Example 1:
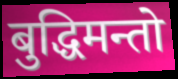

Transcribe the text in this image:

बुद्धिमन्तो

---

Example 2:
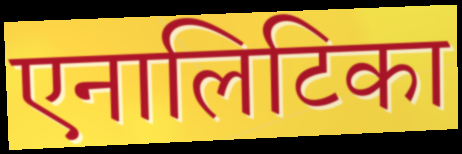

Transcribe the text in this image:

एनालिटिका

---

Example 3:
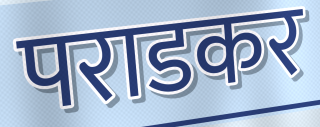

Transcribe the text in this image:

पराडकर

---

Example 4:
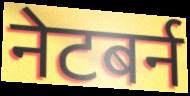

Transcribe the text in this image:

नेटबर्न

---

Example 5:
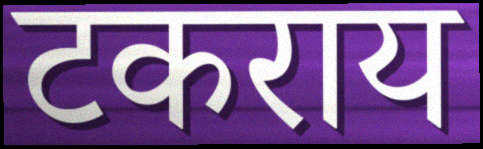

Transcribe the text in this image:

टकराय